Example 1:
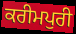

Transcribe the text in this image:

ਕਰੀਮਪੁਰੀ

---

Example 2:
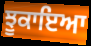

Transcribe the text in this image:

ਝੂਕਾਇਆ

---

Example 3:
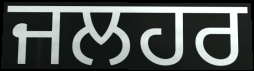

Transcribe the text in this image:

ਜਲਹਰ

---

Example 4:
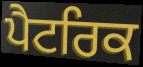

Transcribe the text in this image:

ਪੈਟਰਿਕ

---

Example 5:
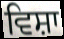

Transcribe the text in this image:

ਵਿਸ਼ਾ